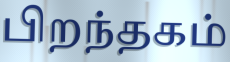
பிறந்தகம்